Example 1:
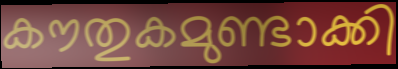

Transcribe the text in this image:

കൗതുകമുണ്ടാക്കി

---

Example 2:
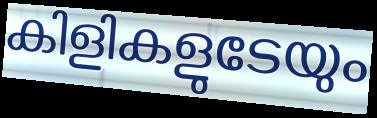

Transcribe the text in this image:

കിളികളുടേയും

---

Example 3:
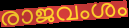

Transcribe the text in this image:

രാജവംശം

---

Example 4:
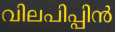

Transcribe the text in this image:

വിലപിപ്പിൻ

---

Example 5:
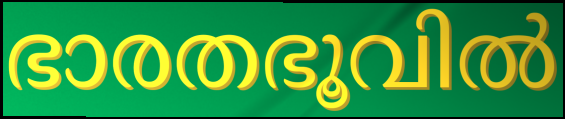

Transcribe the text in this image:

ഭാരതഭൂവിൽ